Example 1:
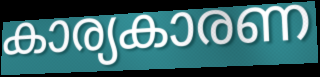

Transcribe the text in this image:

കാര്യകാരണ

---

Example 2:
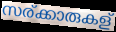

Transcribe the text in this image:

സര്ക്കാരുകള്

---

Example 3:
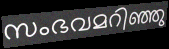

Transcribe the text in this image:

സംഭവമറിഞ്ഞു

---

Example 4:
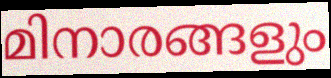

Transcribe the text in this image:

മിനാരങ്ങളും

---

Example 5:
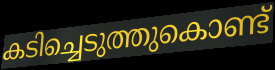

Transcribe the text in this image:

കടിച്ചെടുത്തുകൊണ്ട്